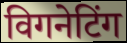
विगनेटिंग